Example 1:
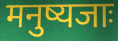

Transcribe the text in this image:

मनुष्यजाः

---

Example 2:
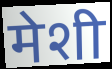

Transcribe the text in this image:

मेशी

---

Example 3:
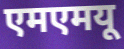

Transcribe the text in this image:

एमएमयू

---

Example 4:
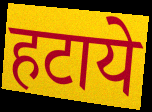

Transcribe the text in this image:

हटाये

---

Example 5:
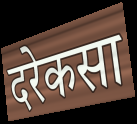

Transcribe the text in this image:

दरेकसा